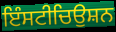
ਇੰਸਟੀਚਿਉਸ਼ਨ